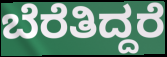
ಬೆರೆತಿದ್ದರೆ